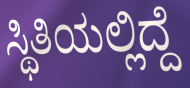
ಸ್ಥಿತಿಯಲ್ಲಿದ್ದೆ